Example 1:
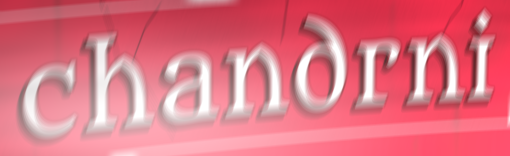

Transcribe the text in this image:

chandrni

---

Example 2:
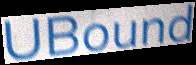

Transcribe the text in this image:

UBound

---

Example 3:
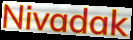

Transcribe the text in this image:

Nivadak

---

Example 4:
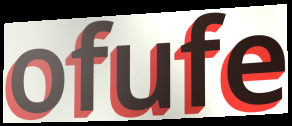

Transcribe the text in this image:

ofufe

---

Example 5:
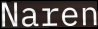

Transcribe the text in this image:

Naren